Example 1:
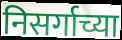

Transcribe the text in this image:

निसर्गाच्या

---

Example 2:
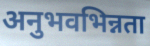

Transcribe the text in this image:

अनुभवभिन्नता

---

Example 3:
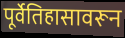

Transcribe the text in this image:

पूर्वेतिहासावरून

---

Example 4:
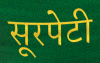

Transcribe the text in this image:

सूरपेटी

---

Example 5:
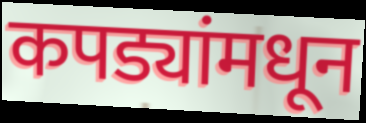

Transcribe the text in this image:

कपड्यांमधून